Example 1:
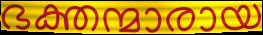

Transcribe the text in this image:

ഭക്തന്മാരായ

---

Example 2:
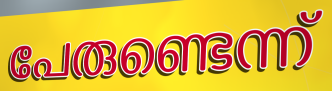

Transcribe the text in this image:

പേരുണ്ടെന്ന്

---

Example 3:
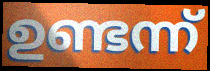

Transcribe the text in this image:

ഉണ്ടന്ന്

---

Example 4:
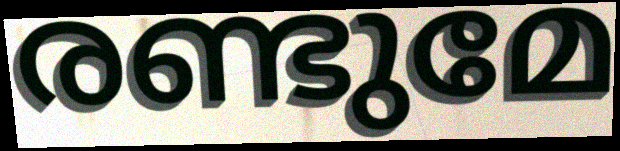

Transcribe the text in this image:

രണ്ടുമേ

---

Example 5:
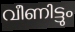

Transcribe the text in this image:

വീണിട്ടും